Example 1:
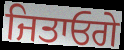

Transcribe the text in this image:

ਜਿਤਾਓਗੇ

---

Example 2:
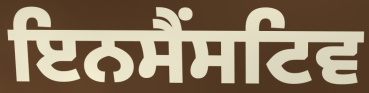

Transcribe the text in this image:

ਇਨਸੈਂਸਟਿਵ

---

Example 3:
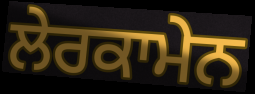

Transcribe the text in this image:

ਲੇਰਕਾਮੇਨ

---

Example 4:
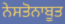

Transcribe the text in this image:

ਨੇਸਤੋਨਾਬੂਤ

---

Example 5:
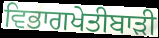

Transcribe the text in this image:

ਵਿਭਾਗਖੇਤੀਬਾੜੀ